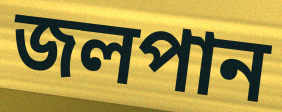
জলপান